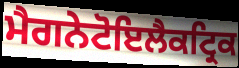
ਮੈਗਨੇਟੋਇਲੈਕਟ੍ਰਿਕ